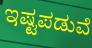
ಇಷ್ಟಪಡುವೆ